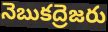
నెబుకద్రెజరు